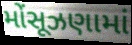
મોંસૂઝણામાં